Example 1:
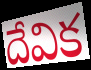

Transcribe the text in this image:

దేవిక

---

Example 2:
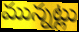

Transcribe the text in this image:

మున్నట్లు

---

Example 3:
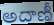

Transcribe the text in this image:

అదాణీ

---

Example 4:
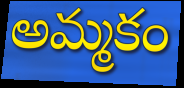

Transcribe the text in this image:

అమ్మకం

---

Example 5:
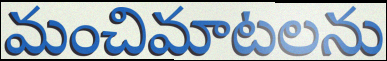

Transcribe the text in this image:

మంచిమాటలను